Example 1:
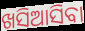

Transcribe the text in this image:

ଖସିଆସିବା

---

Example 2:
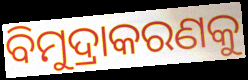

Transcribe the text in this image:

ବିମୁଦ୍ରାକରଣକୁ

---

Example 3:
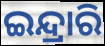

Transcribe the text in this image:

ଇନ୍ଦ୍ରାରି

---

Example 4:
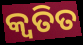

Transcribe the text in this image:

କ୍ୱତିତ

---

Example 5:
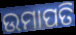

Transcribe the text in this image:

ଉମାପତି